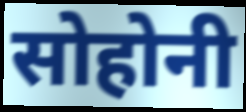
सोहोनी